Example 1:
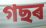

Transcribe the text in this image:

গছৰ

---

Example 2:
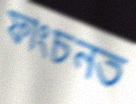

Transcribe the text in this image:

ফাংচনত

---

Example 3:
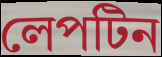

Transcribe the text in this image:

লেপটিন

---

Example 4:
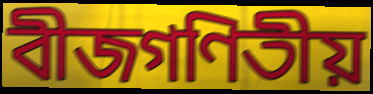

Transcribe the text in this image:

বীজগণিতীয়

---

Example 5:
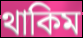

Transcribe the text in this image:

থাকিম